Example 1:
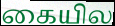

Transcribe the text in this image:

கையில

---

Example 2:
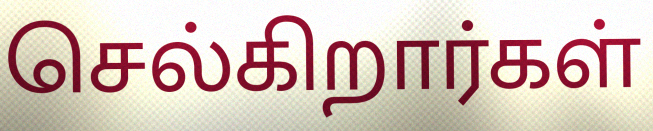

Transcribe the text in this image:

செல்கிறார்கள்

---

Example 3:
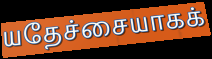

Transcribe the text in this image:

யதேச்சையாகக்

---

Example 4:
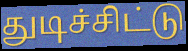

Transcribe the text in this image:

துடிச்சிட்டு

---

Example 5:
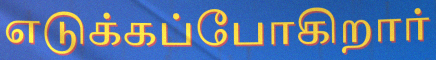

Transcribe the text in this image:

எடுக்கப்போகிறார்